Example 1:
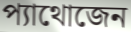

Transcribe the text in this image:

প্যাথোজেন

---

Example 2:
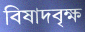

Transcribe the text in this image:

বিষাদবৃক্ষ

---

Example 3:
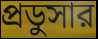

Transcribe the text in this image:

প্রডুসার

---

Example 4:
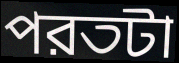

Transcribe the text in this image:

পরতটা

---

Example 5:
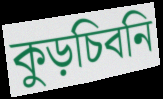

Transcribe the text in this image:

কুড়চিবনি